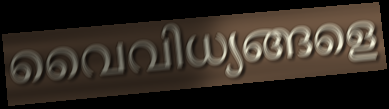
വൈവിധ്യങ്ങളെ